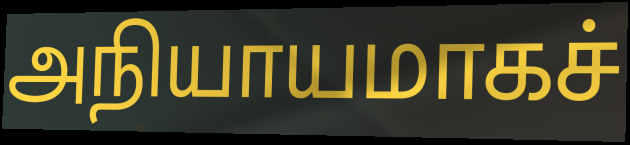
அநியாயமாகச்